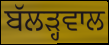
ਬੱਲੜ੍ਹਵਾਲ